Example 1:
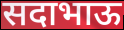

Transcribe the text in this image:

सदाभाऊ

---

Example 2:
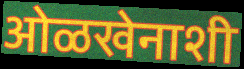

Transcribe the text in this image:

ओळखेनाशी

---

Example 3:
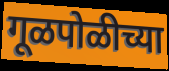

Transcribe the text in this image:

गूळपोळीच्या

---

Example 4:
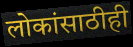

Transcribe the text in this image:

लोकांसाठीही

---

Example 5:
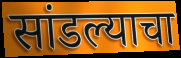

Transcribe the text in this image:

सांडल्याचा